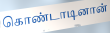
கொண்டாடினான்